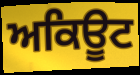
ਅਕਿਊਟ